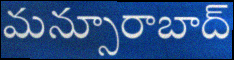
మన్సూరాబాద్